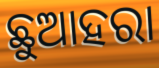
ଛୁଆହରା